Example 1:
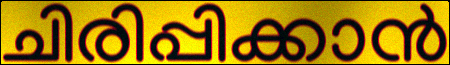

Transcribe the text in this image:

ചിരിപ്പിക്കാൻ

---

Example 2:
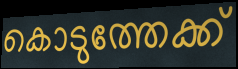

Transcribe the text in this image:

കൊടുത്തേക്ക്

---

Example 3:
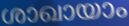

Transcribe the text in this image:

ശാഖായാം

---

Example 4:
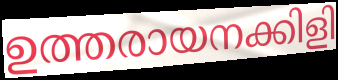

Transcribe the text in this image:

ഉത്തരായനക്കിളി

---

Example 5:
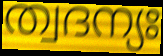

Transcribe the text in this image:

ത്വദന്യഃ